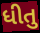
ધીતુ